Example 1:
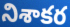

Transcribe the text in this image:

నిశాకర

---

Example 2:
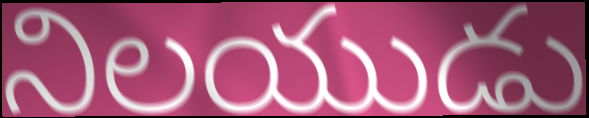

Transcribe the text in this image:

నిలయుడు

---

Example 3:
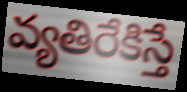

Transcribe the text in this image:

వ్యతిరేకిస్తే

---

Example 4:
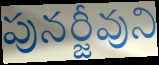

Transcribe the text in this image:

పునర్జీవుని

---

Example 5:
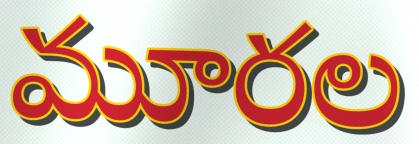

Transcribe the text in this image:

మూరల